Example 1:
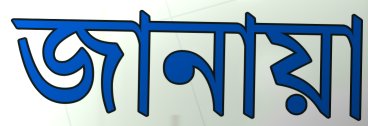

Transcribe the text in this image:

জানায়া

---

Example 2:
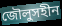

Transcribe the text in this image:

জৌলুসহীন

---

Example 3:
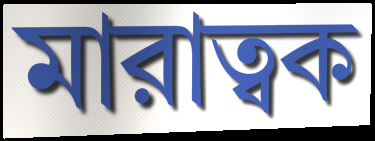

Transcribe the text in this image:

মারাত্বক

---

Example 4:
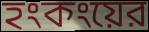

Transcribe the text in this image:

হংকংয়ের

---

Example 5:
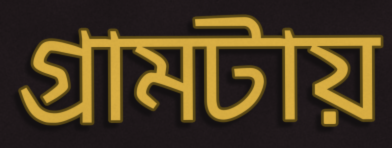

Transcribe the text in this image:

গ্রামটায়